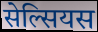
सेल्सियस